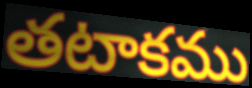
తటాకము